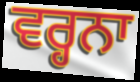
ਵਰ੍ਹਨਾ